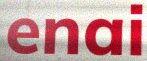
enai